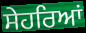
ਸੇਹਰਿਆਂ